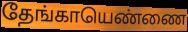
தேங்காயெண்ணை